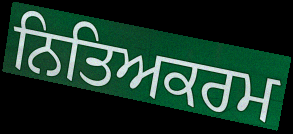
ਨਿਤਿਅਕਰਮ